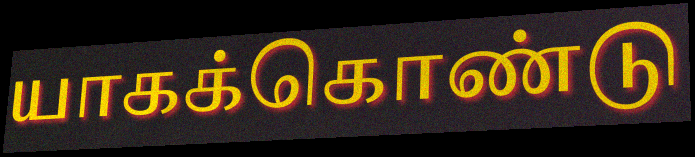
யாகக்கொண்டு